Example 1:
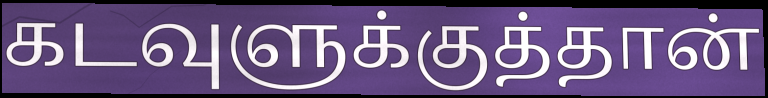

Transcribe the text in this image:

கடவுளுக்குத்தான்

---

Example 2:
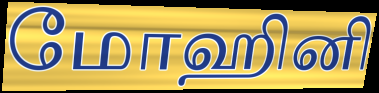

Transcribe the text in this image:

மோஹினி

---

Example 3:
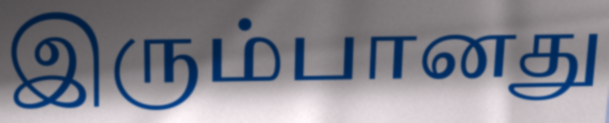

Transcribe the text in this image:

இரும்பானது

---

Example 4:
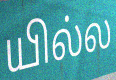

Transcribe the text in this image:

யில்ல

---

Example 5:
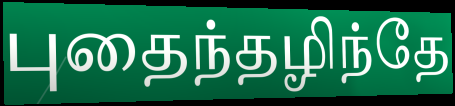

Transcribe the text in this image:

புதைந்தழிந்தே